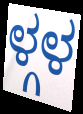
ಳ್ಗಳ